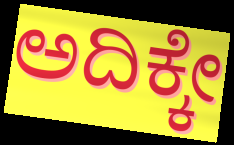
ಅದಿಕ್ಕೇ